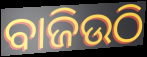
ବାଜିଉଠି